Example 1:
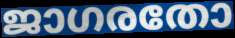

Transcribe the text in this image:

ജാഗരതോ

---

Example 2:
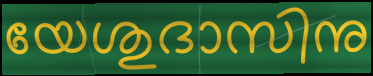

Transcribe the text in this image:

യേശുദാസിനു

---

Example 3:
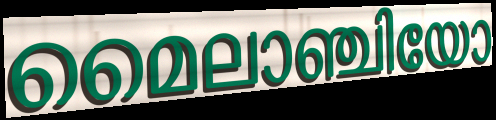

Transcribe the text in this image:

മൈലാഞ്ചിയോ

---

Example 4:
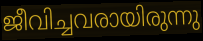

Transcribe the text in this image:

ജീവിച്ചവരായിരുന്നു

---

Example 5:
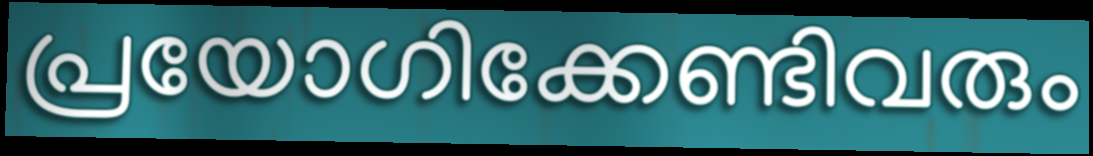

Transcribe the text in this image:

പ്രയോഗിക്കേണ്ടിവരും